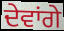
ਦੇਵਾਂਗੇ